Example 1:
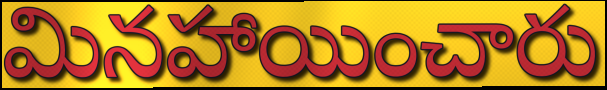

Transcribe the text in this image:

మినహాయించారు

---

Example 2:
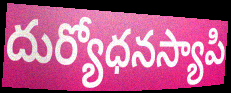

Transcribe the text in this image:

దుర్యోధనస్యాపి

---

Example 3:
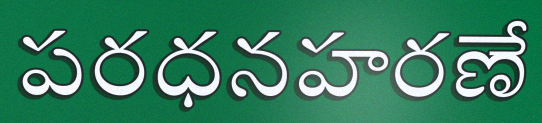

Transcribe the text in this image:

పరధనహరణే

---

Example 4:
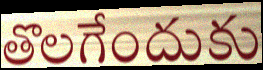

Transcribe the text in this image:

తొలగేందుకు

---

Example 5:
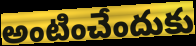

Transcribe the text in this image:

అంటించేందుకు